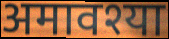
अमावश्या